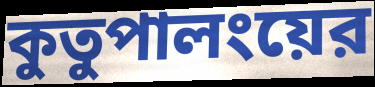
কুতুপালংয়ের